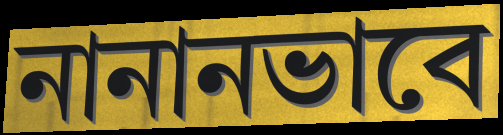
নানানভাবে